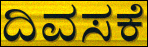
ದಿವಸಕೆ